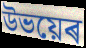
উভয়েৰ